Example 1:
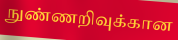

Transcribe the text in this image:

நுண்ணறிவுக்கான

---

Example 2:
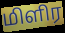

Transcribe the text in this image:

மிளிர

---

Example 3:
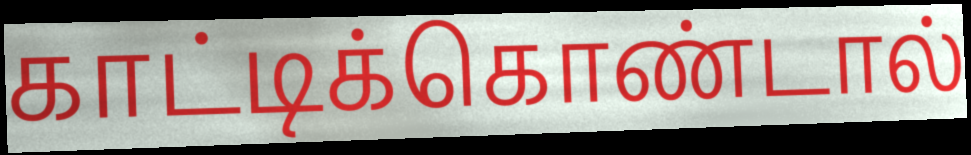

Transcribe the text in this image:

காட்டிக்கொண்டால்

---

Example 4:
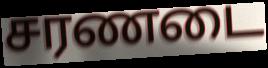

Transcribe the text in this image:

சரணடை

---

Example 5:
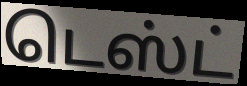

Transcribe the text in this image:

டெஸ்ட்